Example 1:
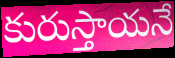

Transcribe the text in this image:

కురుస్తాయనే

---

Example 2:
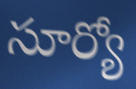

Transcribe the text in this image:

సూర్యో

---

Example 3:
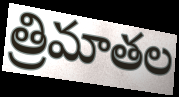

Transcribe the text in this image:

త్రిమాతల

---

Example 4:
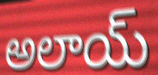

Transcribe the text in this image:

అలాయ్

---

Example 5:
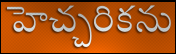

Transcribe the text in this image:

హెచ్చరికను